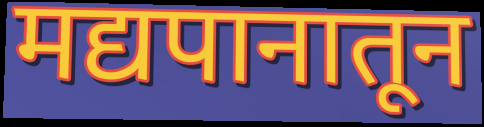
मद्यपानातून